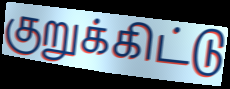
குறுக்கிட்டு